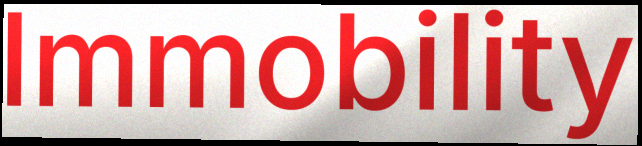
Immobility